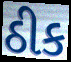
ઠીક